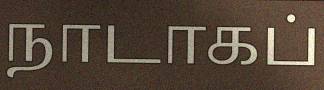
நாடாகப்